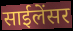
साईलेंसर